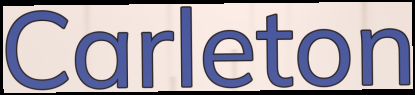
Carleton